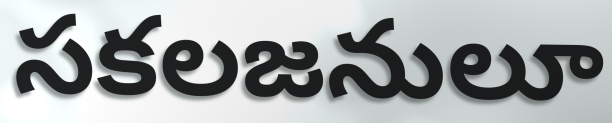
సకలజనులూ